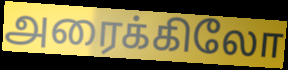
அரைக்கிலோ